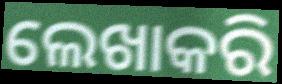
ଲେଖାକରି